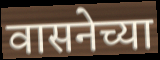
वासनेच्या